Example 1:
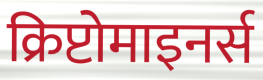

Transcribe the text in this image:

क्रिप्टोमाइनर्स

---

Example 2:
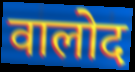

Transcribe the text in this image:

वालोद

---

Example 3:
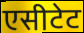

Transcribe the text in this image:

एसीटेट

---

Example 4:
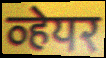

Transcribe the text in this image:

व्हेयर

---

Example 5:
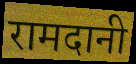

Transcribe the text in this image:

रामदानी